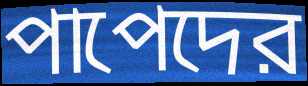
পাপেদের